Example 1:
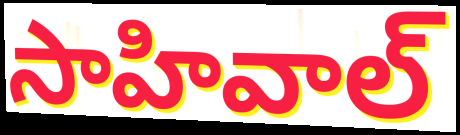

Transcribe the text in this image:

సాహివాల్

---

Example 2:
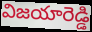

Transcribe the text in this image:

విజయారెడ్డి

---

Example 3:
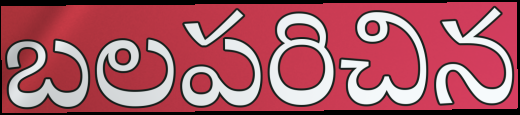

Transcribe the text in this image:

బలపరిచిన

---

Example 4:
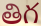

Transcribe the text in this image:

తిగ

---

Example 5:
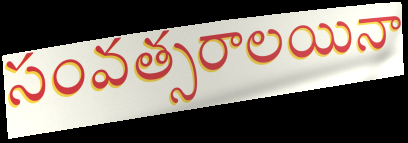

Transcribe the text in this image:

సంవత్సరాలయినా